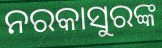
ନରକାସୁରଙ୍କ